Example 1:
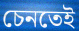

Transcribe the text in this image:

চেনতেই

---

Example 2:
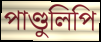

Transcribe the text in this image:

পাণ্ডুলিপি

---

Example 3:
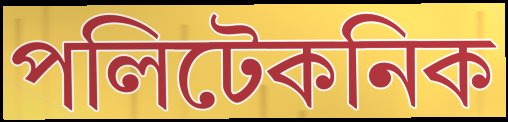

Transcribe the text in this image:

পলিটেকনিক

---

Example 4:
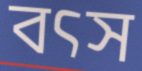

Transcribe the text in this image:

বৎস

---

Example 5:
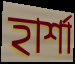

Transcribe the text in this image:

হার্শা